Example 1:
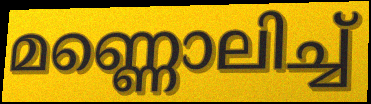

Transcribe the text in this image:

മണ്ണൊലിച്ച്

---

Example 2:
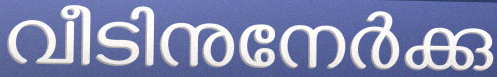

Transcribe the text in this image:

വീടിനുനേർക്കു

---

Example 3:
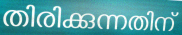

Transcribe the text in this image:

തിരിക്കുന്നതിന്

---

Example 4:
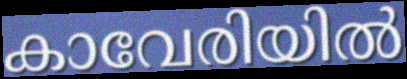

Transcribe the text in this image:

കാവേരിയിൽ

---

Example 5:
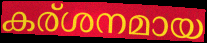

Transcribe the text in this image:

കര്ശനമായ